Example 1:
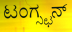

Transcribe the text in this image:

ಟಂಗ್ಸ್ಟನ್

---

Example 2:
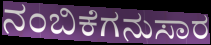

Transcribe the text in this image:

ನಂಬಿಕೆಗನುಸಾರ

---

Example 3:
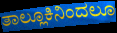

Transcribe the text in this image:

ತಾಲ್ಲೂಕಿನಿಂದಲೂ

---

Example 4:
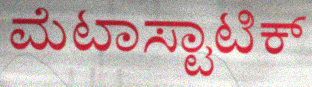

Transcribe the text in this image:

ಮೆಟಾಸ್ಟಾಟಿಕ್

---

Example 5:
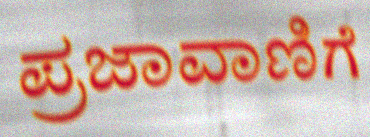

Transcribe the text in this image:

ಪ್ರಜಾವಾಣಿಗೆ